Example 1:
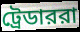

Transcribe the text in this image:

ট্রেডাররা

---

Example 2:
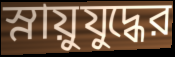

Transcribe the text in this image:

স্নায়ুযুদ্ধের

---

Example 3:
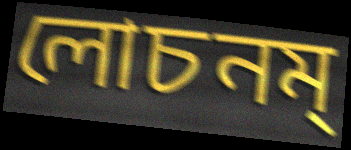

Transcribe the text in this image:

লোচনম্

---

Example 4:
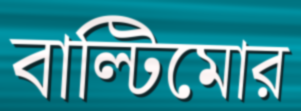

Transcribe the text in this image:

বাল্টিমোর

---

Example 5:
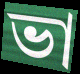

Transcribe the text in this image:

ভা